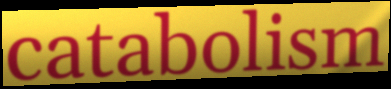
catabolism